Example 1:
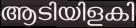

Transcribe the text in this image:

ആടിയിളകി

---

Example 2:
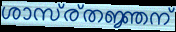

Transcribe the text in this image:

ശാസ്ര്തജ്ഞന്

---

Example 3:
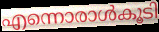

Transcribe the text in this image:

എന്നൊരാൾകൂടി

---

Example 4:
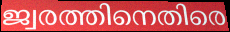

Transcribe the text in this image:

ജ്വരത്തിനെതിരെ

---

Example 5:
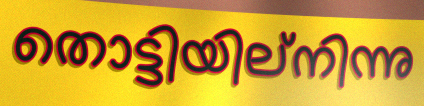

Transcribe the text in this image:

തൊട്ടിയില്നിന്നു